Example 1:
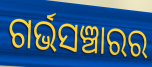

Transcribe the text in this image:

ଗର୍ଭସଞ୍ଚାରର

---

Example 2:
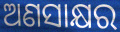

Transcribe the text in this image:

ଅଣସାକ୍ଷର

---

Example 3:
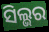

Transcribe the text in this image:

ସିଲ୍ଭର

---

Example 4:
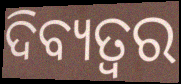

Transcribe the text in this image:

ଦିବ୍ୟତ୍ବର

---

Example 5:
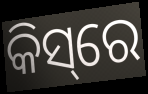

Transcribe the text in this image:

କିସ୍‌ରେ